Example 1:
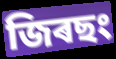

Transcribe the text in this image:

জিৰছং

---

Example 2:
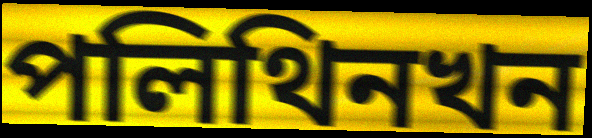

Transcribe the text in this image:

পলিথিনখন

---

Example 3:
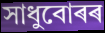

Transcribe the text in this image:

সাধুবোৰৰ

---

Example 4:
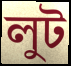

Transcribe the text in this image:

লুট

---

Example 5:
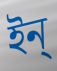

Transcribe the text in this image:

ইন্